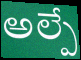
అల్పే